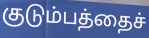
குடும்பத்தைச்